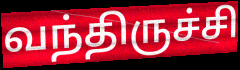
வந்திருச்சி